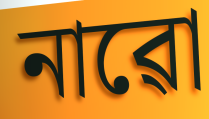
নাৱো